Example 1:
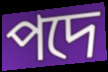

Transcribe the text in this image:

পদে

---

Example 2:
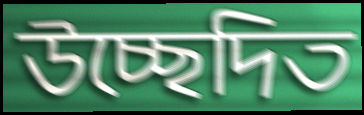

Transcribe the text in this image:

উচ্ছেদিত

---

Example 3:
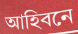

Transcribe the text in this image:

আহিবনে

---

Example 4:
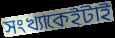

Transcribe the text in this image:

সংখ্যাকেইটাই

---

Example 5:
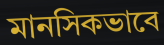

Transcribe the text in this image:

মানসিকভাবে